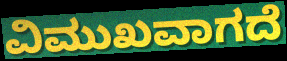
ವಿಮುಖವಾಗದೆ